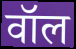
वॉल